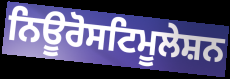
ਨਿਊਰੋਸਟਿਮੂਲੇਸ਼ਨ